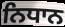
ਨਿਧਾਨ